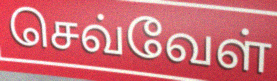
செவ்வேள்